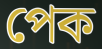
পেক